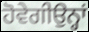
ਹੋਵੇਗੀਉਨ੍ਹਾਂ